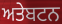
ਅਤੇਬਟਨ